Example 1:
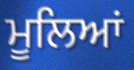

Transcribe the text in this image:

ਮੂਲਿਆਂ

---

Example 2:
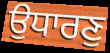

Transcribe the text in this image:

ਉਧਾਰਣੁ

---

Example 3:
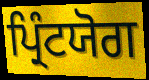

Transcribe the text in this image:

ਪ੍ਰਿੰਟਯੋਗ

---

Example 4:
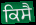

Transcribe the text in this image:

ਕਿਸੈ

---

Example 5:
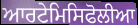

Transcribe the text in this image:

ਆਰਟੇਮਿਸਿਫੋਲੀਆ